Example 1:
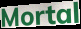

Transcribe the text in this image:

Mortal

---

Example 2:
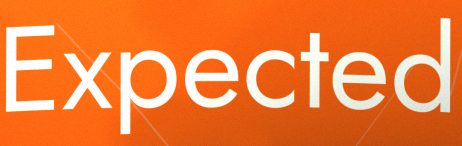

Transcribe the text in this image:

Expected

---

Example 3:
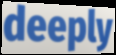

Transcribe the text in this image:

deeply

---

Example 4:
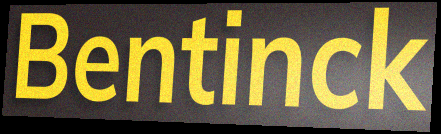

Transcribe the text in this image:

Bentinck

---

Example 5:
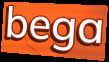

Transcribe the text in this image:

bega